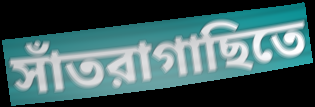
সাঁতরাগাছিতে